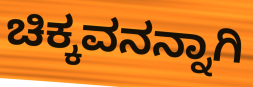
ಚಿಕ್ಕವನನ್ನಾಗಿ